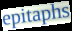
epitaphs